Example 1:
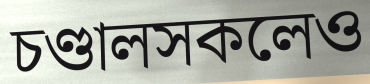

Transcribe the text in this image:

চণ্ডালসকলেও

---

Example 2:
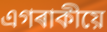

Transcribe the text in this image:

এগৰাকীয়ে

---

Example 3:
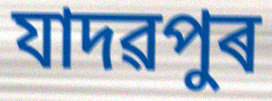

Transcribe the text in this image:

যাদৱপুৰ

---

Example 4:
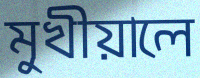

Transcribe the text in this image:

মুখীয়ালে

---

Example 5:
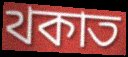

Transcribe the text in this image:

থকাত